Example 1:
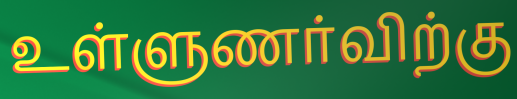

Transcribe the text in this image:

உள்ளுணர்விற்கு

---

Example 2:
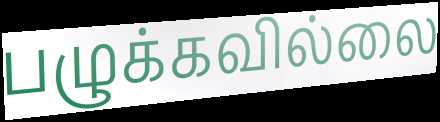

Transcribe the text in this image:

பழுக்கவில்லை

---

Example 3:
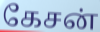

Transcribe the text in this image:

கேசன்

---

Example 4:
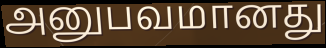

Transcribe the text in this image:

அனுபவமானது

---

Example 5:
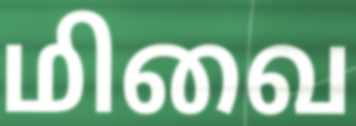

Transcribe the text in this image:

மிவை